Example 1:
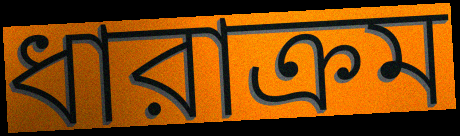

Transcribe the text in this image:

ধারাক্রম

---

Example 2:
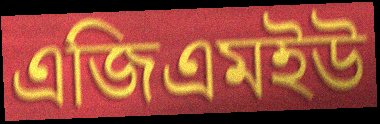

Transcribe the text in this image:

এজিএমইউ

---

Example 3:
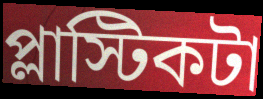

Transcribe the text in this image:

প্লাস্টিকটা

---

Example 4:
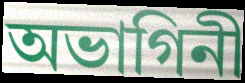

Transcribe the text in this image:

অভাগিনী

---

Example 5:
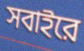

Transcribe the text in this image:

সবাইরে